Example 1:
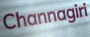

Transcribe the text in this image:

Channagiri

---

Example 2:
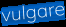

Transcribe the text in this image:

vulgare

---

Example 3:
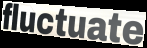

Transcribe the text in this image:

fluctuate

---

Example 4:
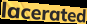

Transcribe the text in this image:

lacerated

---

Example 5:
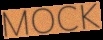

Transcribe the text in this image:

MOCK